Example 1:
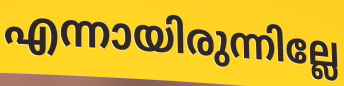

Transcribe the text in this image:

എന്നായിരുന്നില്ലേ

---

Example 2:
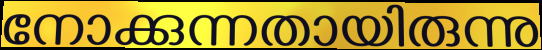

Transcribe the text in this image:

നോക്കുന്നതായിരുന്നു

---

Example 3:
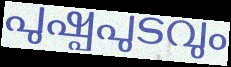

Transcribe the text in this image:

പുഷ്പപുടവും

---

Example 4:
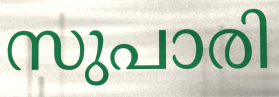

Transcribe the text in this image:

സുപാരി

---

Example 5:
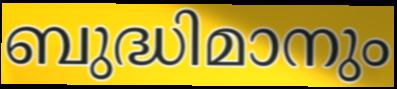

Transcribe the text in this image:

ബുദ്ധിമാനും